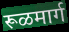
रूळमार्ग